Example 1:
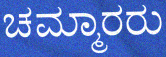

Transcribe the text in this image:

ಚಮ್ಮಾರರು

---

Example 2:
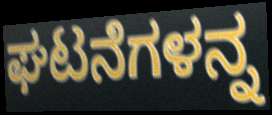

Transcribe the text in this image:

ಘಟನೆಗಳನ್ನ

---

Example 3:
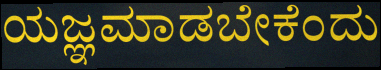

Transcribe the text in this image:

ಯಜ್ಞಮಾಡಬೇಕೆಂದು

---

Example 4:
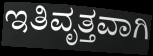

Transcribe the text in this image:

ಇತಿವೃತ್ತವಾಗಿ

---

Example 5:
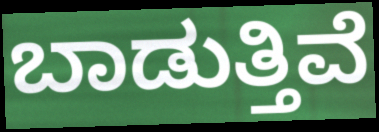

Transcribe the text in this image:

ಬಾಡುತ್ತಿವೆ